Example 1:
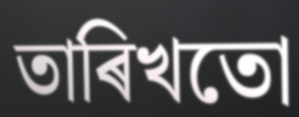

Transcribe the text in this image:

তাৰিখতো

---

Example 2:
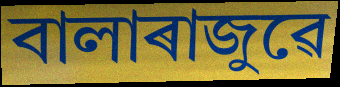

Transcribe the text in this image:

বালাৰাজুৱে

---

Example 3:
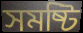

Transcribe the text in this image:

সমষ্টি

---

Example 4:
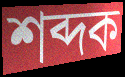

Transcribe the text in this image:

শব্দক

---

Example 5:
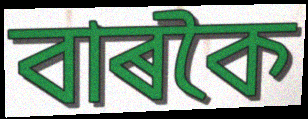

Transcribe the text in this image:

বাৰকৈ